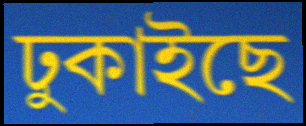
ঢুকাইছে